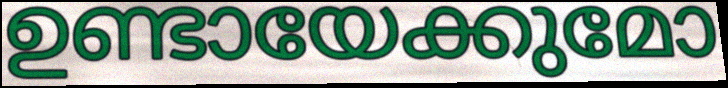
ഉണ്ടായേക്കുമോ